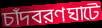
চাঁদবরণঘাটে